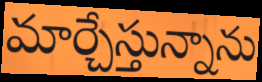
మార్చేస్తున్నాను